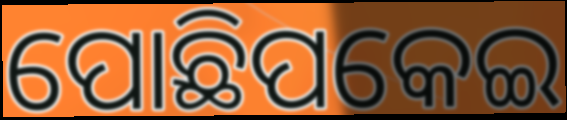
ପୋଛିପକେଇ